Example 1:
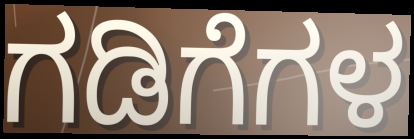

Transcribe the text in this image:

ಗಡಿಗೆಗಳ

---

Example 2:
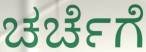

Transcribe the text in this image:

ಚರ್ಚೆಗೆ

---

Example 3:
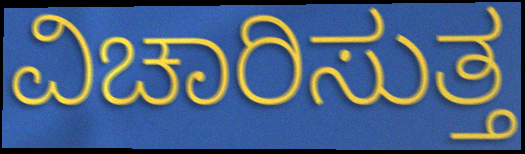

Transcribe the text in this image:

ವಿಚಾರಿಸುತ್ತ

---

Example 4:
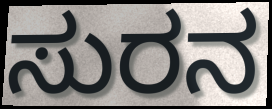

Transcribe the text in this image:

ಸುರನ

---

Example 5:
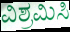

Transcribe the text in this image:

ವಿಶ್ರಮಿಸಿ